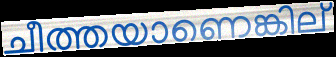
ചീത്തയാണെങ്കില്